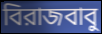
বিরাজবাবু